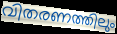
വിതരണത്തിലും